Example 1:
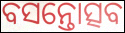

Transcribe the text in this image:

ବସନ୍ତୋତ୍ସବ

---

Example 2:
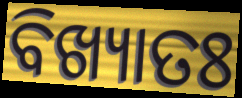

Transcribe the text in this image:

ବିଖ୍ୟାତଃ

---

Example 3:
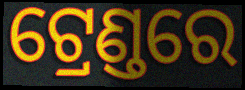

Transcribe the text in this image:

ଟ୍ରେଣ୍ଡରେ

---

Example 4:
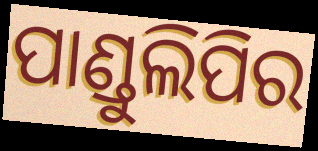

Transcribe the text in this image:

ପାଣ୍ଡୁଲିପିର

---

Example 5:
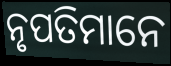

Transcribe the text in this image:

ନୃପତିମାନେ